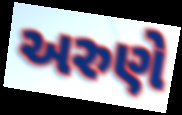
અરુણે